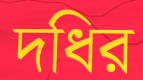
দধির